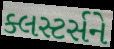
ક્લસ્ટર્સને